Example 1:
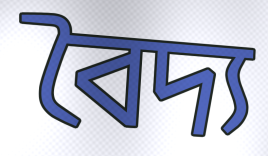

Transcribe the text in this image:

বৈদ্য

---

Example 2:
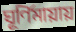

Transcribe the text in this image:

ঘূর্ণিমায়ায়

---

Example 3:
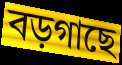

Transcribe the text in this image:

বড়গাছে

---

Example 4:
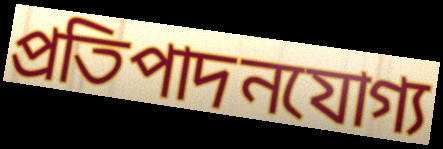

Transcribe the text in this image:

প্রতিপাদনযোগ্য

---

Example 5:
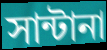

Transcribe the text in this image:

সান্টানা